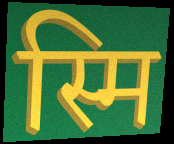
स्मि